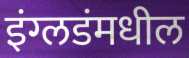
इंग्लडंमधील